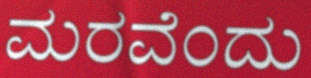
ಮರವೆಂದು